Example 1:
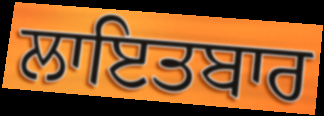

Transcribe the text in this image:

ਲਾਇਤਬਾਰ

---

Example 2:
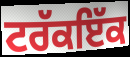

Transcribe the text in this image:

ਟਰੱਕਇੱਕ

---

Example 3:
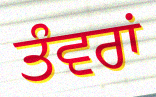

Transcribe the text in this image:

ਤੰਵਰਾਂ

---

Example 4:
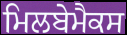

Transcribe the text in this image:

ਮਿਲਬੇਮੈਕਸ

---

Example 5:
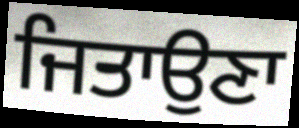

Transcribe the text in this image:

ਜਿਤਾਉਣਾ